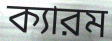
ক্যারম